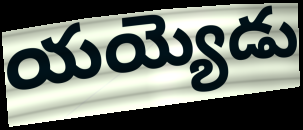
యయ్యెడు